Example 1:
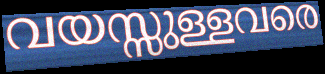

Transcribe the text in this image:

വയസ്സുള്ളവരെ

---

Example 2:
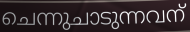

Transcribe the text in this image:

ചെന്നുചാടുന്നവന്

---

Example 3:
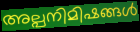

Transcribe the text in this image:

അല്പനിമിഷങ്ങൾ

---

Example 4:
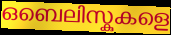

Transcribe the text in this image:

ഒബെലിസ്കുകളെ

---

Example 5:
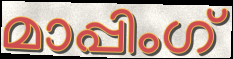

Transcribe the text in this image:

മാപ്പിംഗ്